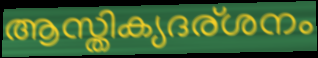
ആസ്തിക്യദര്ശനം